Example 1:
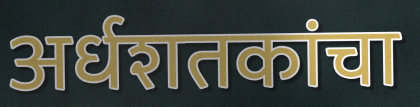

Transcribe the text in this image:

अर्धशतकांचा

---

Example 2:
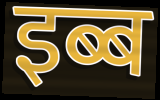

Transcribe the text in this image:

इब्ब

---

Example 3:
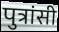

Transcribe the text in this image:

पुत्रांसी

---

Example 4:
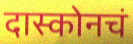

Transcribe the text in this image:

दास्कोनचं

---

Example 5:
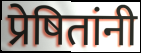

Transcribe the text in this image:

प्रेषितांनी